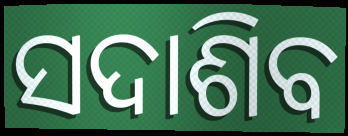
ସଦାଶିବ